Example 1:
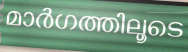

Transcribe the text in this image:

മാർഗത്തിലൂടെ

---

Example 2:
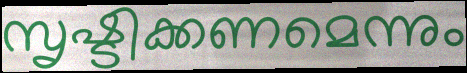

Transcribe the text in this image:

സൃഷ്ടിക്കണമെന്നും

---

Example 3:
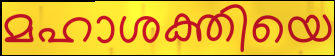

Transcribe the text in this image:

മഹാശക്തിയെ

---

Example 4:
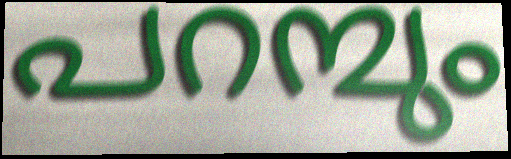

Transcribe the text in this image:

പറമ്പും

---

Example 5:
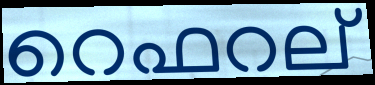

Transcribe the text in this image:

റെഫറല്